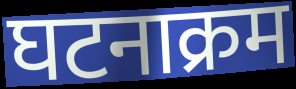
घटनाक्रम